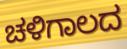
ಚಳಿಗಾಲದ